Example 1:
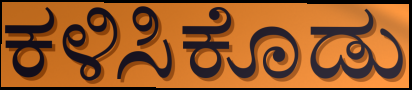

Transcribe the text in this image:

ಕಳಿಸಿಕೊಡು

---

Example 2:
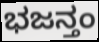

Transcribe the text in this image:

ಭಜನ್ತಂ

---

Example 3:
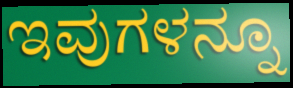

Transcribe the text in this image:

ಇವುಗಳನ್ನೂ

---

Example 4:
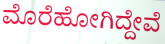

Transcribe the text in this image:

ಮೊರೆಹೋಗಿದ್ದೇವೆ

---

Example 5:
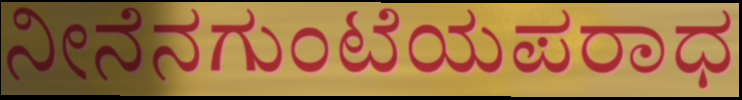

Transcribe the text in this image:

ನೀನೆನಗುಂಟೆಯಪರಾಧ